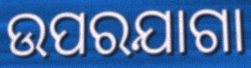
ଉପରଯାଗା